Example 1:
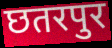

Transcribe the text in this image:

छतरपुर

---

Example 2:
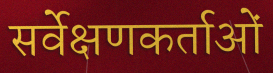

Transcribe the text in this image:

सर्वेक्षणकर्ताओं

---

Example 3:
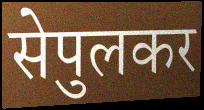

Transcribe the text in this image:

सेपुलकर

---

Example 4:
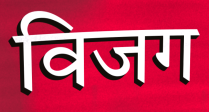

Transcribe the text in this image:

विजग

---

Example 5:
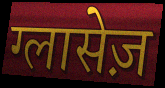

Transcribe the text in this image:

ग्लासेज़